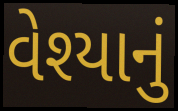
વેશ્યાનું